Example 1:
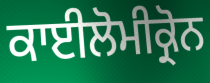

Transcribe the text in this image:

ਕਾਈਲੋਮੀਕ੍ਰੋਨ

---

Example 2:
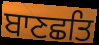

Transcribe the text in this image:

ਬਾਣਛਤਿ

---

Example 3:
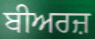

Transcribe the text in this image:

ਬੀਅਰਜ਼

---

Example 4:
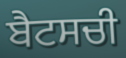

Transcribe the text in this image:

ਬੈਟਸਚੀ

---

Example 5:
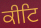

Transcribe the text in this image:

ਕੀਟਿ